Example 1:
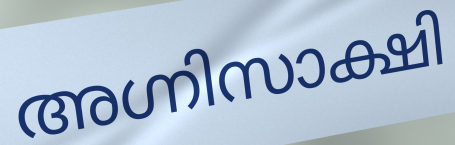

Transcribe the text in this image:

അഗ്നിസാക്ഷി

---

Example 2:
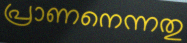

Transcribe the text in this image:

പ്രാണനെന്നതു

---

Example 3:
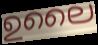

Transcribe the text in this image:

ഉലൈ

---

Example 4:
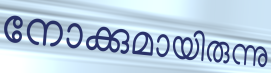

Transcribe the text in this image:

നോക്കുമായിരുന്നു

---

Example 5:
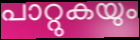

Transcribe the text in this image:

പാറ്റുകയും